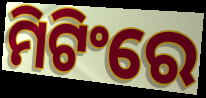
ମିଟିଂରେ